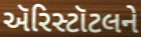
ઍરિસ્ટૉટલને